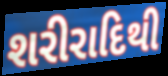
શરીરાદિથી